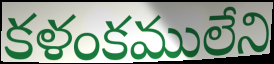
కళంకములేని